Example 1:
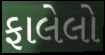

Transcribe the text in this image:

ફાલેલો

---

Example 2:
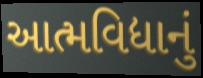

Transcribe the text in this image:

આત્મવિદ્યાનું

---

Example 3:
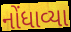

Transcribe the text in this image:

નોંધાવ્યા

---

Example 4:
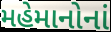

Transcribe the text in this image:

મહેમાનોનાં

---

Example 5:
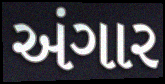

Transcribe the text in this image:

અંગાર